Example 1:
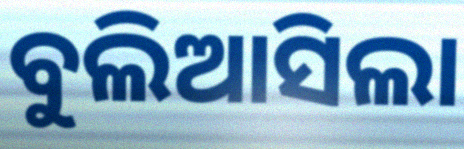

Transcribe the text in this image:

ବୁଲିଆସିଲା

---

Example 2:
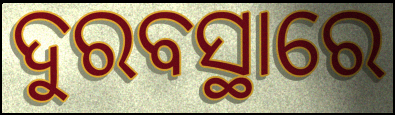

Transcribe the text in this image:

ଦୁରବସ୍ଥାରେ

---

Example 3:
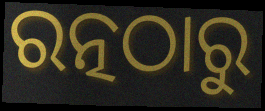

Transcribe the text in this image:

ରତ୍ନଠାରୁ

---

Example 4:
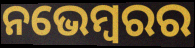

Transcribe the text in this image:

ନଭେମ୍ବରର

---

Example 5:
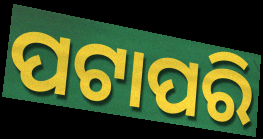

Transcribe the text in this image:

ପଟାପରି